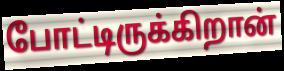
போட்டிருக்கிறான்